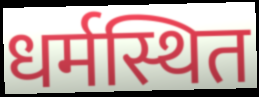
धर्मस्थित